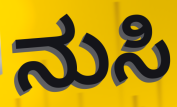
ನುಸಿ